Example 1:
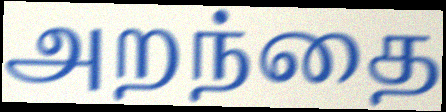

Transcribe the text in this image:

அறந்தை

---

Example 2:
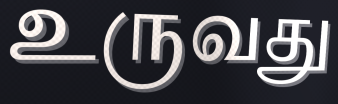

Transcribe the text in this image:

உருவது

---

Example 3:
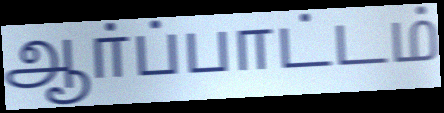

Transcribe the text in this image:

ஆர்ப்பாட்டம்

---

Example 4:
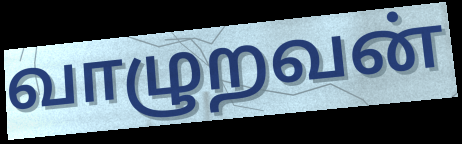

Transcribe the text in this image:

வாழுறவன்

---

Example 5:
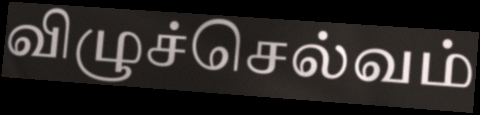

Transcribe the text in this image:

விழுச்செல்வம்